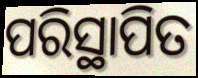
ପରିସ୍ଥାପିତ